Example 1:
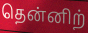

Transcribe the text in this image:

தென்னிற்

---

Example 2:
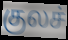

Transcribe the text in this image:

குலச்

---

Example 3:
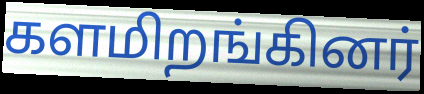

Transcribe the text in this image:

களமிறங்கினர்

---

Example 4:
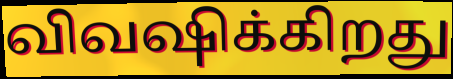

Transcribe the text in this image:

விவஷிக்கிறது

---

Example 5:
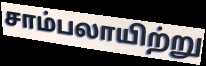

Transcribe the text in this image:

சாம்பலாயிற்று